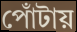
পোঁটায়